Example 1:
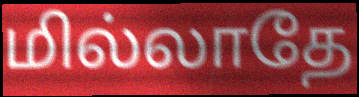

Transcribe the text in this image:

மில்லாதே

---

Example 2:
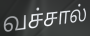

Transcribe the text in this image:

வச்சால்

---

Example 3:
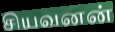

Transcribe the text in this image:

சியவனன்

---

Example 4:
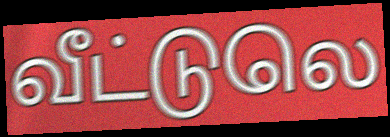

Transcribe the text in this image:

வீட்டுலெ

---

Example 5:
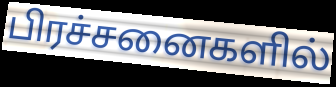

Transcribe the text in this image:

பிரச்சனைகளில்